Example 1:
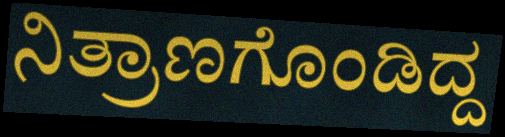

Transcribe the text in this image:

ನಿತ್ರಾಣಗೊಂಡಿದ್ದ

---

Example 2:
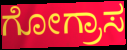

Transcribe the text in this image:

ಗೋಗ್ರಾಸ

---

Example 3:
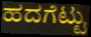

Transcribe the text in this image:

ಹದಗೆಟ್ಟು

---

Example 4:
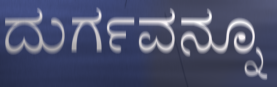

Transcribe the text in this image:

ದುರ್ಗವನ್ನೂ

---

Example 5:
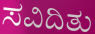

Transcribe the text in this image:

ಸವಿದಿತು